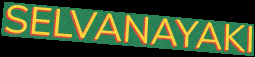
SELVANAYAKI